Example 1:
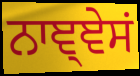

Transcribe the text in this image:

ਨਾਞ੍ਞੇਸਂ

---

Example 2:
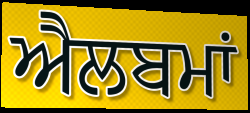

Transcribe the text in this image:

ਐਲਬਮਾਂ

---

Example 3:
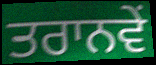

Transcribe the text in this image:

ਤਰਾਨਵੇਂ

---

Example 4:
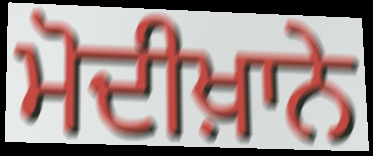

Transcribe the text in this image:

ਮੋਦੀਖ਼ਾਨੇ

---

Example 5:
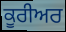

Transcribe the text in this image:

ਕੂਰੀਅਰ